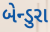
બેન્ડુરા